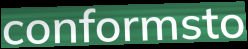
conformsto